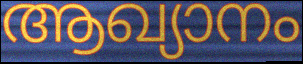
ആഖ്യാനം